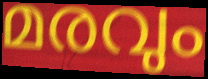
മരവും